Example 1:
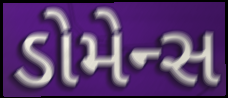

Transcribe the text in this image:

ડોમેન્સ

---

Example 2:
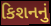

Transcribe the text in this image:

કિશનનું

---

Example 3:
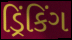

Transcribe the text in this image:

ડ્રિંકિંગ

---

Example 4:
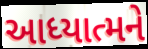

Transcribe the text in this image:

આધ્યાત્મને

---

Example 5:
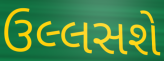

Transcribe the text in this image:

ઉલ્લસશે